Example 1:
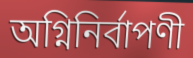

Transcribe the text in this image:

অগ্নিনির্বাপণী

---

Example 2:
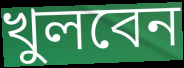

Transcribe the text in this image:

খুলবেন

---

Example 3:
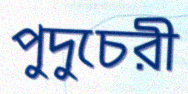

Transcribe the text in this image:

পুদুচেরী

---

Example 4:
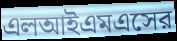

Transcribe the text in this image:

এলআইএমএসের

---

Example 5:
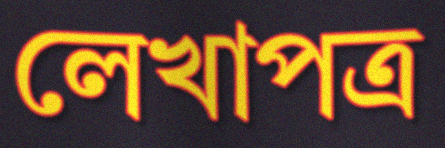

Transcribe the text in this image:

লেখাপত্র